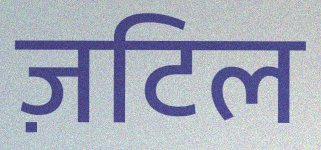
ज़टिल